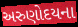
અરુણોદયના